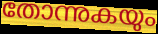
തോന്നുകയും